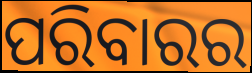
ପରିବାରର